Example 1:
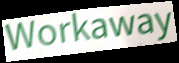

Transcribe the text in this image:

Workaway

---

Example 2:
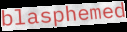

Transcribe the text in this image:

blasphemed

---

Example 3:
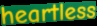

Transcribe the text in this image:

heartless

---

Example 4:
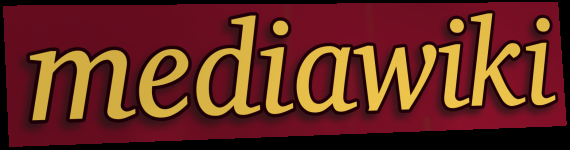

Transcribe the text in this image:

mediawiki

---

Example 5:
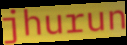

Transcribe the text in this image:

jhurun